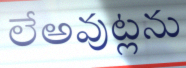
లేఅవుట్లను